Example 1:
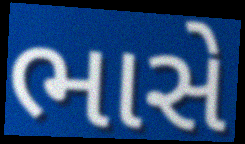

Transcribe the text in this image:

ભાસે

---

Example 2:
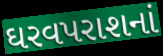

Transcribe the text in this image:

ઘરવપરાશનાં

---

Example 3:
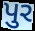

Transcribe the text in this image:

પુર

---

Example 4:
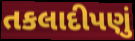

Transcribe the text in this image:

તકલાદીપણું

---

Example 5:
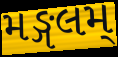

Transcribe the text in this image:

મઙ્ગલમ્